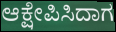
ಆಕ್ಷೇಪಿಸಿದಾಗ